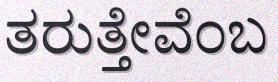
ತರುತ್ತೇವೆಂಬ